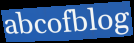
abcofblog